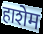
हाशेम